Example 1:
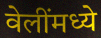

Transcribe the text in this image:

वेलींमध्ये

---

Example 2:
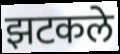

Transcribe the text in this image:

झटकले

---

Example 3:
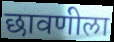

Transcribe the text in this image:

छावणीला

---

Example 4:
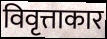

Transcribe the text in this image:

विवृत्ताकार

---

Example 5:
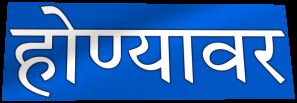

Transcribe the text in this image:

होण्यावर